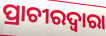
ପ୍ରାଚୀରଦ୍ୱାରା